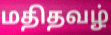
மதிதவழ்